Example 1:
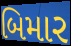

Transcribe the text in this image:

બિમાર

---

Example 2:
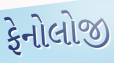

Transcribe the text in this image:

ફેનોલોજી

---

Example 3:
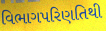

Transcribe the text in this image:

વિભાગપરિણતિથી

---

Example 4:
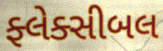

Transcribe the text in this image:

ફ્લેક્સીબલ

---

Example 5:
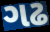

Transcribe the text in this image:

ગઢ